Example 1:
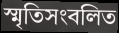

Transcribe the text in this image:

স্মৃতিসংবলিত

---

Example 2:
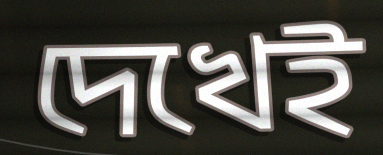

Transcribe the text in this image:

দেখেই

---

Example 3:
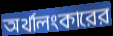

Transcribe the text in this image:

অর্থালংকারের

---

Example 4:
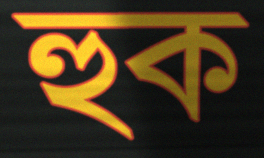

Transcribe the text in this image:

হুক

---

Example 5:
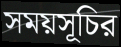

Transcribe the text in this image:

সময়সূচির